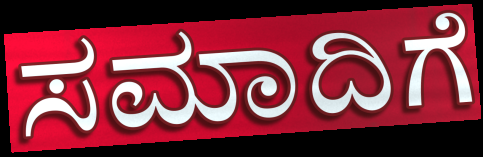
ಸಮಾದಿಗೆ